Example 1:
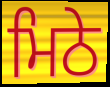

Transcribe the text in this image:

ਮਿਠੇ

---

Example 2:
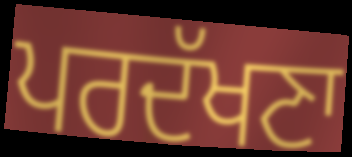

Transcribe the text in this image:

ਪਰਦੱਖਣਾ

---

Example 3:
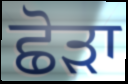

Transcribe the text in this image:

ਛੋੜਾ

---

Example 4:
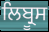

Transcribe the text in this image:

ਲਿਬ੍ਰੂਸ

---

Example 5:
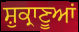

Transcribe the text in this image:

ਸ਼ੁਕ੍ਰਾਣੂਆਂ